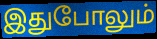
இதுபோலும்